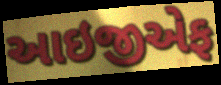
આઇજીએફ